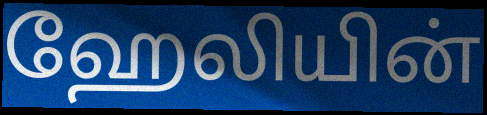
ஹேலியின்